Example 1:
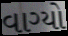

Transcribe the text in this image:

વાગ્યો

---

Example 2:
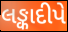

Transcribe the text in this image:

લઙ્કાદીપે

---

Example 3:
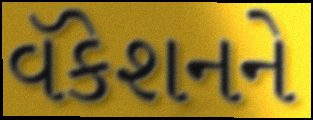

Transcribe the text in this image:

વૅકેશનને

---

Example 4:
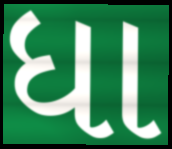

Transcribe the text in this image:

ધા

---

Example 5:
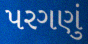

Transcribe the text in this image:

પરગણું